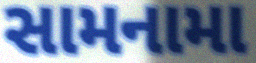
સામનામા